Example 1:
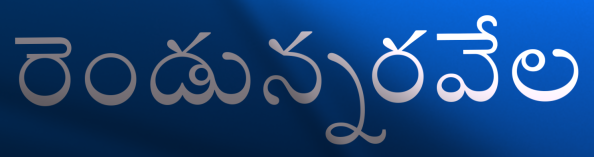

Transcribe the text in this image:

రెండున్నరవేల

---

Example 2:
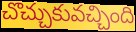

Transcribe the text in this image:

చొచ్చుకువచ్చింది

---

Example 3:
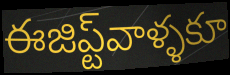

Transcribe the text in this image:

ఈజిప్ట్‌వాళ్ళకూ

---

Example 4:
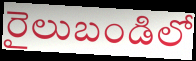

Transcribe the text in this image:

రైలుబండిలో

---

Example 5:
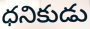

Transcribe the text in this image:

ధనికుడు